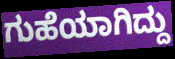
ಗುಹೆಯಾಗಿದ್ದು